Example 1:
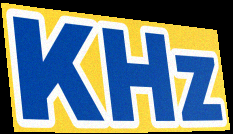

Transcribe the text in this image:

KHz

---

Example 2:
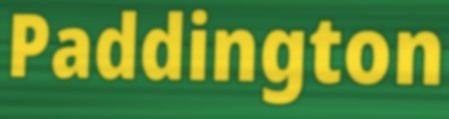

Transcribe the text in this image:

Paddington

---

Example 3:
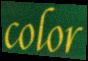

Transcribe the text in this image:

color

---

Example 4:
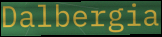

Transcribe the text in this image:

Dalbergia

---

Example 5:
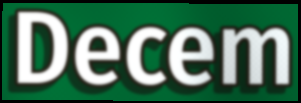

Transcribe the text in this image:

Decem